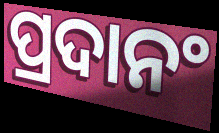
ପ୍ରଦାନଂ